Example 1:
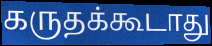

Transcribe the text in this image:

கருதக்கூடாது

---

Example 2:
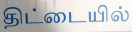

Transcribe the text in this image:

திட்டையில்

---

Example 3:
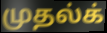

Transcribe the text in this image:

முதல்க்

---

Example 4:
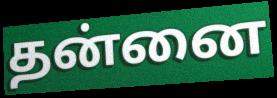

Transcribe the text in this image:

தன்னை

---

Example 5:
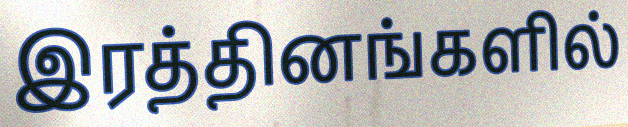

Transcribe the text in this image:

இரத்தினங்களில்